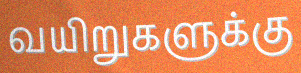
வயிறுகளுக்கு